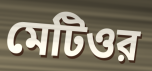
মেটিওর